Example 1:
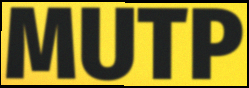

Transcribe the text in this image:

MUTP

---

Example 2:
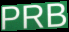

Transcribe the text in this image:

PRB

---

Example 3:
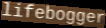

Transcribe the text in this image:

lifebogger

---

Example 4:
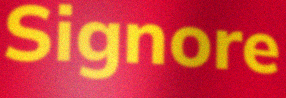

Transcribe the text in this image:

Signore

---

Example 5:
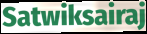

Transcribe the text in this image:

Satwiksairaj